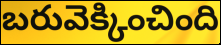
బరువెక్కించింది